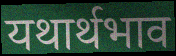
यथार्थभाव